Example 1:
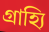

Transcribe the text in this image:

গ্রাহ্যি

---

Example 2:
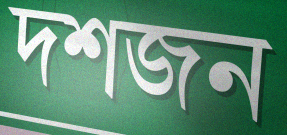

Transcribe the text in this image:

দশজন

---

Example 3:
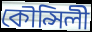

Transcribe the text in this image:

কৌন্সিলী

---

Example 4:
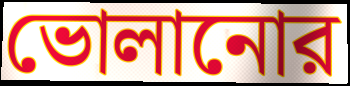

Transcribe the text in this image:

ভোলানোর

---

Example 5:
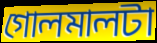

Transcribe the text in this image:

গোলমালটা